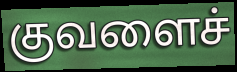
குவளைச்